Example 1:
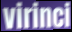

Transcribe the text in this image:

virinci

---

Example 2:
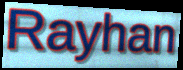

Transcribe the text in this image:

Rayhan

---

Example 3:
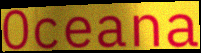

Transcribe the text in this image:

Oceana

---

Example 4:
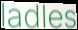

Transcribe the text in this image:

ladles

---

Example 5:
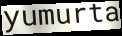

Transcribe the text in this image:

yumurta